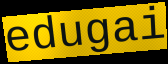
edugai